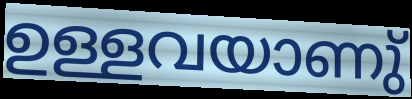
ഉള്ളവയാണു്